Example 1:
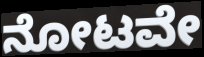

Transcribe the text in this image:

ನೋಟವೇ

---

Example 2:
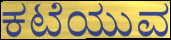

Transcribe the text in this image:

ಕಟೆಯುವ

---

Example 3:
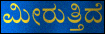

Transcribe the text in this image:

ಮೀರುತ್ತಿದೆ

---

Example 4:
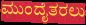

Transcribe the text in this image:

ಮುಂದೈತರಲು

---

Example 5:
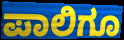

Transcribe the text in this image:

ಪಾಲಿಗೂ